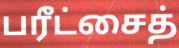
பரீட்சைத்